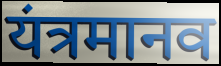
यंत्रमानव